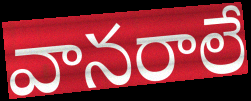
వానరాలే